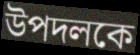
উপদলকে